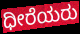
ಧೀರೆಯರು